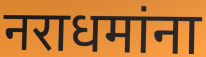
नराधमांना